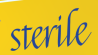
sterile